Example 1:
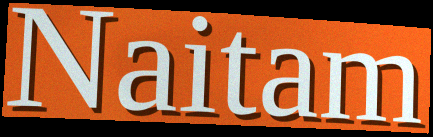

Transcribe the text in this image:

Naitam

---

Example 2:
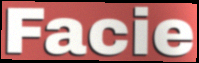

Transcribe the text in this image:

Facie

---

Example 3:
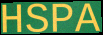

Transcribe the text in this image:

HSPA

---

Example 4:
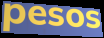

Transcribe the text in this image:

pesos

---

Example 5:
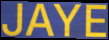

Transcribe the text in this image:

JAYE